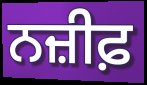
ਨਜ਼ੀਫ਼